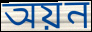
অয়ন